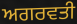
ਅਗਰਵਤੀ